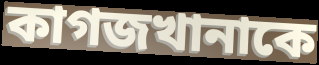
কাগজখানাকে